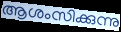
ആശംസിക്കുന്നു